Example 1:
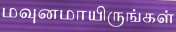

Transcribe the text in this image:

மவுனமாயிருங்கள்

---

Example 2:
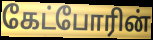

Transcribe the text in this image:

கேட்போரின்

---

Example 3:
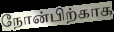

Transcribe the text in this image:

நோன்பிற்காக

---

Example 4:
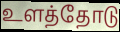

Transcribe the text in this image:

உளத்தோடு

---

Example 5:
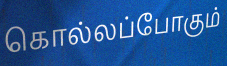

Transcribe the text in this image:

கொல்லப்போகும்